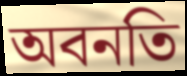
অবনতি